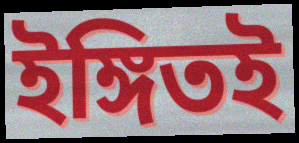
ইঙ্গিতই